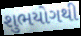
શુભયોગથી